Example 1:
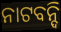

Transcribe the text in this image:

ନାଟବନ୍ଦି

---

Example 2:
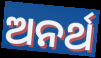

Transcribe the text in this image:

ଅନର୍ଥ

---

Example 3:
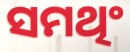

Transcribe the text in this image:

ସମଥିଂ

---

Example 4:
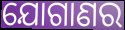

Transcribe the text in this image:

ଯୋଗାଣର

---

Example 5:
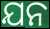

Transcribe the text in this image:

ଯନ